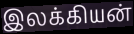
இலக்கியன்